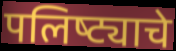
पलिष्ट्याचे